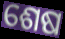
ଶେଷ